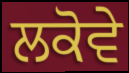
ਲਕੋਵੇ